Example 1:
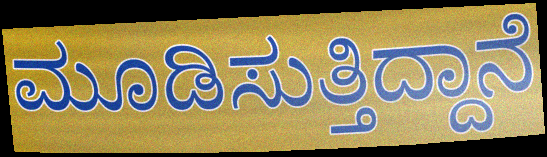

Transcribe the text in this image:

ಮೂಡಿಸುತ್ತಿದ್ದಾನೆ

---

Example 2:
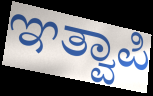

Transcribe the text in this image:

ಞತ್ವಾಪಿ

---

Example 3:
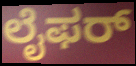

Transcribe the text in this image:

ಲೈಫರ್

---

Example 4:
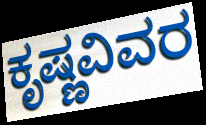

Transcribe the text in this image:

ಕೃಷ್ಣವಿವರ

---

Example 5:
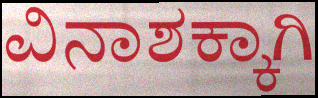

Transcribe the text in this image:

ವಿನಾಶಕ್ಕಾಗಿ